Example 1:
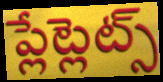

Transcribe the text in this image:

ప్లేట్లెట్స్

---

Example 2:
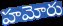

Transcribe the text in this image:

హమోరు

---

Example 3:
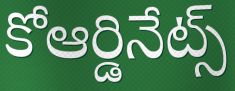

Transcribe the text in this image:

కోఆర్డినేట్స్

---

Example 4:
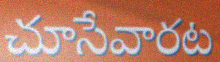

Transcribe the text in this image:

చూసేవారట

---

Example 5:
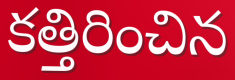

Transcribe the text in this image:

కత్తిరించిన